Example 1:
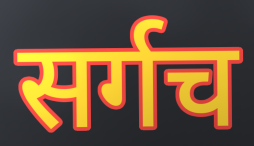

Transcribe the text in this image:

सर्गच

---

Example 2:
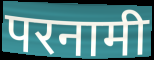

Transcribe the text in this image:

परनामी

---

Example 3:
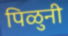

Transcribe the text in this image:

पिळुनी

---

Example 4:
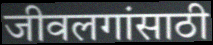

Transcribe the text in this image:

जीवलगांसाठी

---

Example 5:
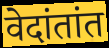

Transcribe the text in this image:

वेदांतांत